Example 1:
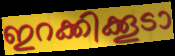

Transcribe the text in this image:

ഇറക്കിക്കൂടാ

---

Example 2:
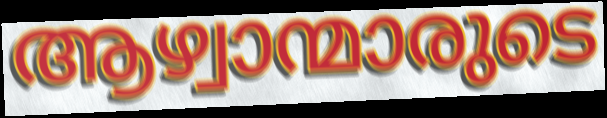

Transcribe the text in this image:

ആഴ്വാന്മാരുടെ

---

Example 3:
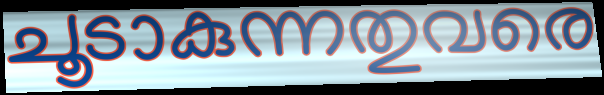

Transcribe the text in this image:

ചൂടാകുന്നതുവരെ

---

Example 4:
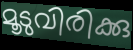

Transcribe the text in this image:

മൂടുവിരിക്കു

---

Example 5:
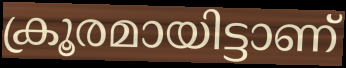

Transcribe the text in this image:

ക്രൂരമായിട്ടാണ്